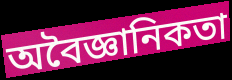
অবৈজ্ঞানিকতা